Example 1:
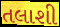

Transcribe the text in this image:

તલાશી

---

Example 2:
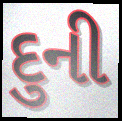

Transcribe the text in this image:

દુની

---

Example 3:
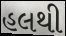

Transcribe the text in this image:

હલથી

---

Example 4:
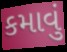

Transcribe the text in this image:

કમાવું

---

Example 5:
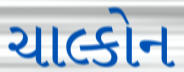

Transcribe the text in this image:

ચાલ્કોન